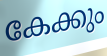
കേക്കും